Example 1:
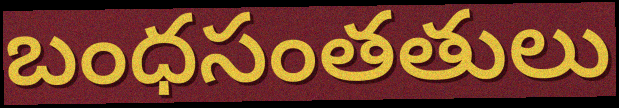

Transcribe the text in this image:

బంధసంతతులు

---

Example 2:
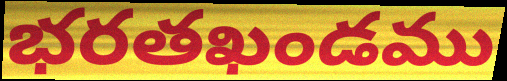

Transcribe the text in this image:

భరతఖండము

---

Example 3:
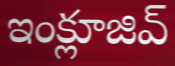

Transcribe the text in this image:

ఇంక్లూజివ్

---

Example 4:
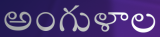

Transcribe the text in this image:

అంగుళాల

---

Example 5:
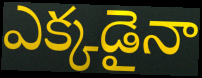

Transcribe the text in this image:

ఎక్కడైనా